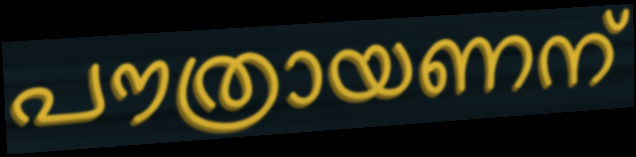
പൗത്രായണന്